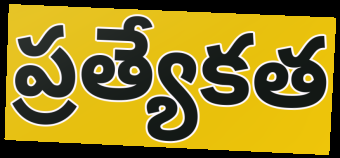
ప్రత్యేకత